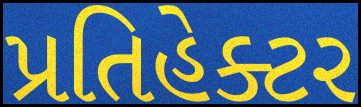
પ્રતિહેક્ટર